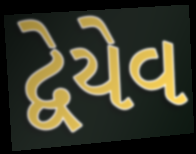
દ્વેયેવ